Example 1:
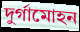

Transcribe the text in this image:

দুর্গামোহন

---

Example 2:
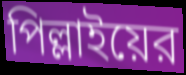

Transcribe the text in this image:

পিল্লাইয়ের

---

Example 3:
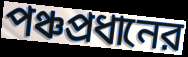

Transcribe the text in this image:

পঞ্চপ্রধানের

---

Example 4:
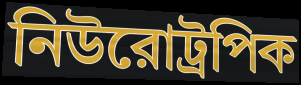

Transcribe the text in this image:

নিউরোট্রপিক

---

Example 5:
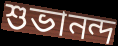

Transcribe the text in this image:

শুভানন্দ